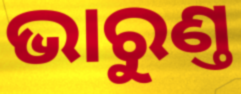
ଭାରୁଣ୍ତ